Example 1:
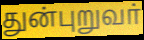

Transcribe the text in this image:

துன்புறுவர்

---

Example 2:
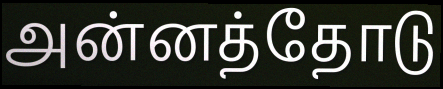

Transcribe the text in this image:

அன்னத்தோடு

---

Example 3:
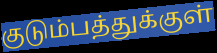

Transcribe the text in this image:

குடும்பத்துக்குள்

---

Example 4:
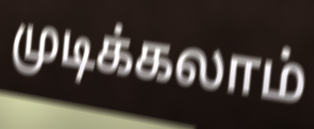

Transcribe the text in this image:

முடிக்கலாம்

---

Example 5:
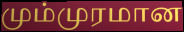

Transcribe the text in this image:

மும்முரமான